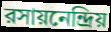
রসায়নেন্দ্রিয়